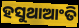
ହସୁଥାଆଂତି